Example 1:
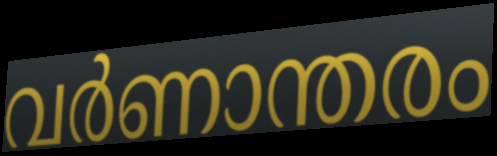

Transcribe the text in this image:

വർണാന്തരം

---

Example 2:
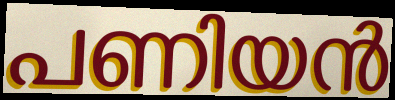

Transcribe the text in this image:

പണിയൻ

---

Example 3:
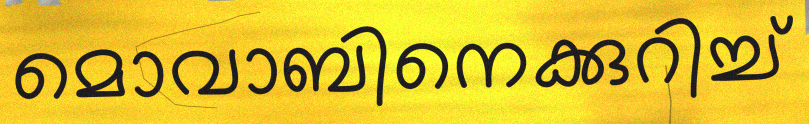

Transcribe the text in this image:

മൊവാബിനെക്കുറിച്ച്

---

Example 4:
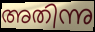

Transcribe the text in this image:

അതിന്നു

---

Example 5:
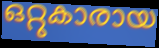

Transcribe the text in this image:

ഒറ്റുകാരായ